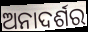
ଅନାଦର୍ଶର